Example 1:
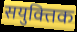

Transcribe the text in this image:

सयुक्तिक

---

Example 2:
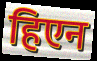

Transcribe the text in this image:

हिएन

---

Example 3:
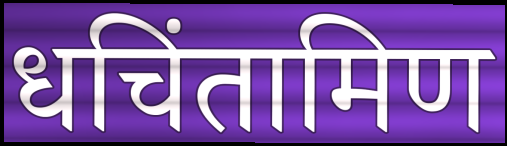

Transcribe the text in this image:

धचिंतामिण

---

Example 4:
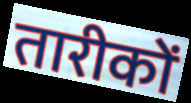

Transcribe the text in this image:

तारीकों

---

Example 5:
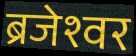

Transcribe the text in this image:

ब्रजेश्वर